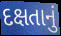
દક્ષતાનું